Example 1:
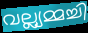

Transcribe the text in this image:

വല്ല്യമ്മച്ചി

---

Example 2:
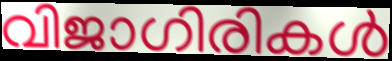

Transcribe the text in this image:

വിജാഗിരികൾ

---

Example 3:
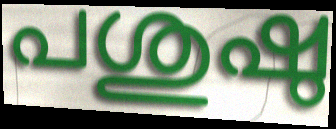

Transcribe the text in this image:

പശുഷു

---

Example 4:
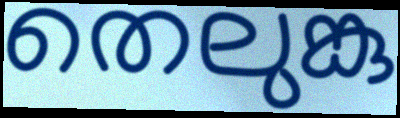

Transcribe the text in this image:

തെലുങ്കു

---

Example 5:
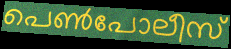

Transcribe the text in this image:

പെൺപോലീസ്